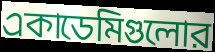
একাডেমিগুলোর